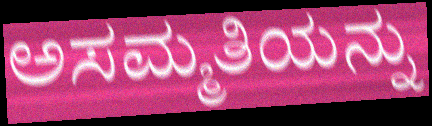
ಅಸಮ್ಮತಿಯನ್ನು